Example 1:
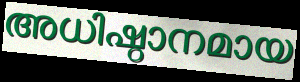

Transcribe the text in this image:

അധിഷ്ഠാനമായ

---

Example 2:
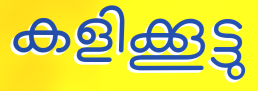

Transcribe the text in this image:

കളിക്കൂട്ടു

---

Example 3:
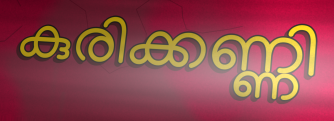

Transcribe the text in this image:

കുരിക്കണ്ണി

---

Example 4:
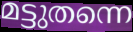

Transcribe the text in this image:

മട്ടുതന്നെ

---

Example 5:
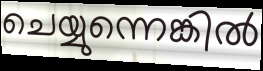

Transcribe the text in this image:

ചെയ്യുന്നെങ്കിൽ